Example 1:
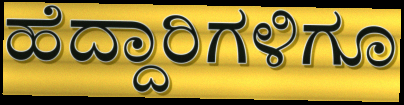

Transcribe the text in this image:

ಹೆದ್ದಾರಿಗಳಿಗೂ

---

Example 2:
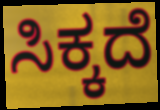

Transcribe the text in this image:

ಸಿಕ್ಕದೆ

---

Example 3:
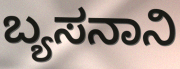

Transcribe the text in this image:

ಬ್ಯಸನಾನಿ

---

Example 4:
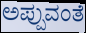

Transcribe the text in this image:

ಅಪ್ಪುವಂತೆ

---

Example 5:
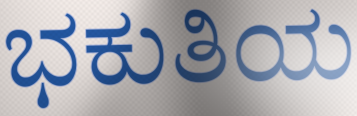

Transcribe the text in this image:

ಭಕುತಿಯ